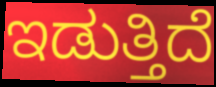
ಇಡುತ್ತಿದೆ